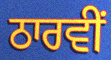
ਠਾਰਵੀਂ